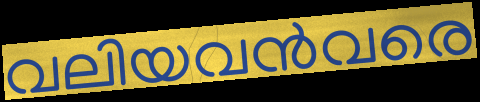
വലിയവൻവരെ